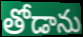
తోడాను